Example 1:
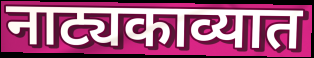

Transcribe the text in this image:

नाट्यकाव्यात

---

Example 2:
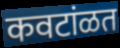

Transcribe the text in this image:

कवटांळत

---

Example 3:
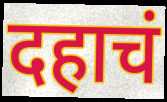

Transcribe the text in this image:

दहाचं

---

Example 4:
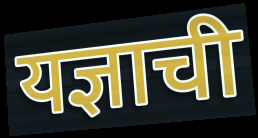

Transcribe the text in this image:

यज्ञाची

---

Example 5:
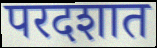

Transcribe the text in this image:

परदशात